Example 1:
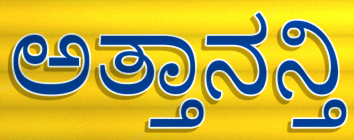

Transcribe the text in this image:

ಅತ್ತಾನನ್ತಿ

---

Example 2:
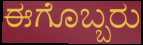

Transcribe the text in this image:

ಈಗೊಬ್ಬರು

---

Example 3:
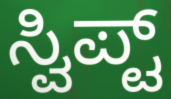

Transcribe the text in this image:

ಸ್ವಿಪ್ಟ್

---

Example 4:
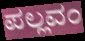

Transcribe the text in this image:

ಪಲ್ಲವಂ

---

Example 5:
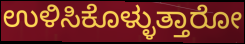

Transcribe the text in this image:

ಉಳಿಸಿಕೊಳ್ಳುತ್ತಾರೋ